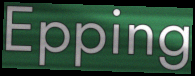
Epping